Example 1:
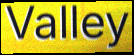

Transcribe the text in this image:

Valley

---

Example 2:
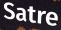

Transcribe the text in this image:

Satre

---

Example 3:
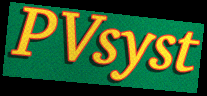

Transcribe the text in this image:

PVsyst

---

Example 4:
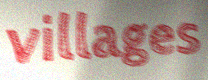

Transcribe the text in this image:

villages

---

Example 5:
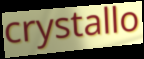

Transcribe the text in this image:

crystallo